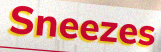
Sneezes